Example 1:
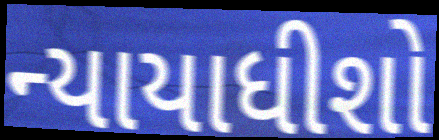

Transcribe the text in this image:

ન્યાયાધીશો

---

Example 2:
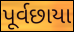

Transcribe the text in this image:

પૂર્વછાયા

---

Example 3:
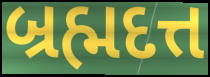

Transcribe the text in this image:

બ્રહ્મદત્ત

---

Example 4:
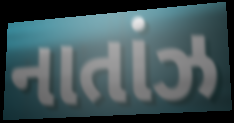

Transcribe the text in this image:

નાતાંઝ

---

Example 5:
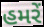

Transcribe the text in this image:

હમરેં